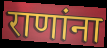
राणांना